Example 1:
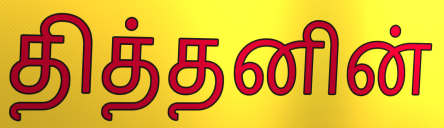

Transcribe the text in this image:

தித்தனின்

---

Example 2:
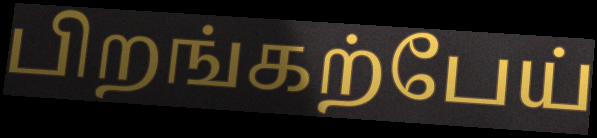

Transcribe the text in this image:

பிறங்கற்பேய்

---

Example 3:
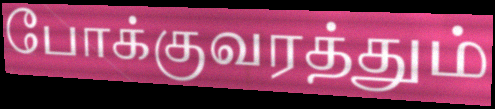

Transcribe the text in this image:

போக்குவரத்தும்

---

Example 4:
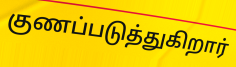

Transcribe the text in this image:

குணப்படுத்துகிறார்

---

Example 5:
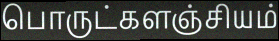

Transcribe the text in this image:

பொருட்களஞ்சியம்